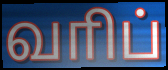
வரிப்